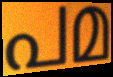
പമ